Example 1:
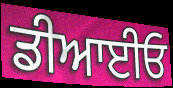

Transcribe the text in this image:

ਡੀਆਈਓ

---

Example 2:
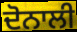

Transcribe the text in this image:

ਦੋਨਾਲੀ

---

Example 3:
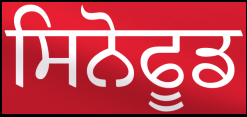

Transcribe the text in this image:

ਸਿਨੋਫੂਡ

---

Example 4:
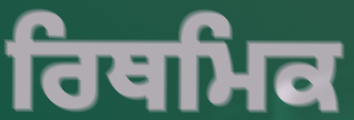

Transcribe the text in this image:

ਰਿਥਮਿਕ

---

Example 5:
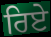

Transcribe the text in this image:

ਰਿਏ